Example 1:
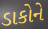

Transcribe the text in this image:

ડાકોને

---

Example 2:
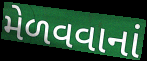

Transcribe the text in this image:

મેળવવાનાં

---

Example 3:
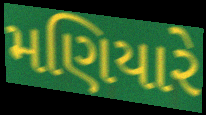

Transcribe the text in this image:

મણિયારે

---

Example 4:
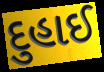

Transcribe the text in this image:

દુહાઈ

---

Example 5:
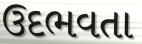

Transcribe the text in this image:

ઉદભવતા